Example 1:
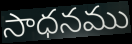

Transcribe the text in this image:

సాధనము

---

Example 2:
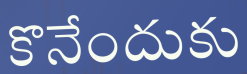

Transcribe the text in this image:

కొనేందుకు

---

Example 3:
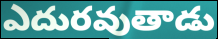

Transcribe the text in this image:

ఎదురవుతాడు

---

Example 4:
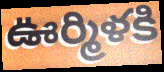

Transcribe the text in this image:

ఊర్మిళకి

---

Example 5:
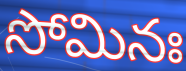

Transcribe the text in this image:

సోమినః